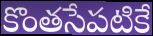
కొంతసేపటికే